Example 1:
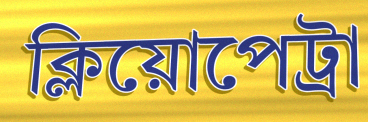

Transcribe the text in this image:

ক্লিয়োপেট্রা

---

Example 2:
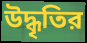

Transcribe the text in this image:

উদ্ধৃতির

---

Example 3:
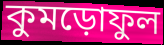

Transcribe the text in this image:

কুমড়োফুল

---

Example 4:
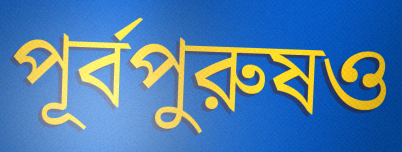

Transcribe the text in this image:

পূর্বপুরুষও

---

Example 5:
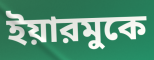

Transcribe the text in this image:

ইয়ারমুকে